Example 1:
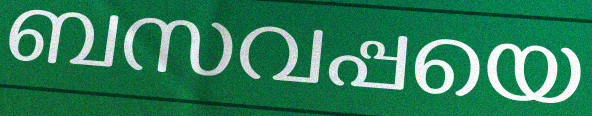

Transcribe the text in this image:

ബസവപ്പയെ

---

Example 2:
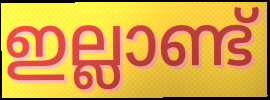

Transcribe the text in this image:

ഇല്ലാണ്ട്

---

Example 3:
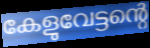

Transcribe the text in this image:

കേളുവേട്ടന്റെ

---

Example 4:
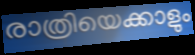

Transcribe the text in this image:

രാത്രിയെക്കാളും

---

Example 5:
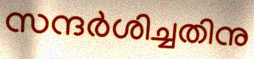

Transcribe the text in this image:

സന്ദർശിച്ചതിനു